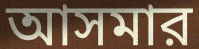
আসমার